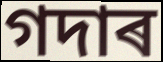
গদাৰ